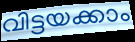
വിട്ടയക്കാം